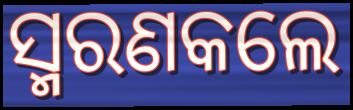
ସ୍ମରଣକଲେ